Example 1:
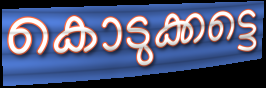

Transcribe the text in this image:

കൊടുക്കട്ടെ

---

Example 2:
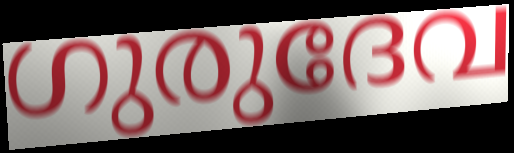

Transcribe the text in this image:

ഗുരുദേവ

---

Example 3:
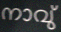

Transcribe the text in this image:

നാവു്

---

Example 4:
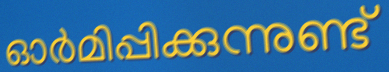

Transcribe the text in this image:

ഓർമിപ്പിക്കുന്നുണ്ട്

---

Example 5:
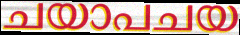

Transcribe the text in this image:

ചയാപചയ